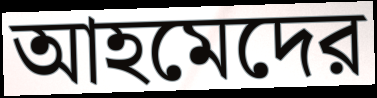
আহমেদের